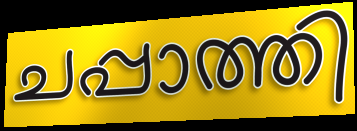
ചപ്പാത്തി